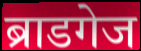
ब्राडगेज